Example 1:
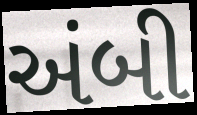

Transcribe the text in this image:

અંબી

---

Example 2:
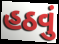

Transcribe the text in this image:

હઠવું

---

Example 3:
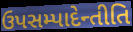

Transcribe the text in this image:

ઉપસમ્પાદેન્તીતિ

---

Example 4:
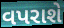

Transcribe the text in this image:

વપરાશે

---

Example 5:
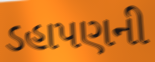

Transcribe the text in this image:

ડહાપણની